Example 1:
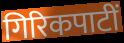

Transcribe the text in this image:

गिरिकपाटीं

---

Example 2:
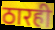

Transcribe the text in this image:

ठारही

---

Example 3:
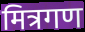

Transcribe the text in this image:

मित्रगण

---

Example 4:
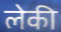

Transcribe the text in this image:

लेकी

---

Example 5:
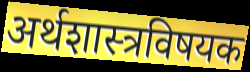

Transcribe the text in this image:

अर्थशास्त्रविषयक